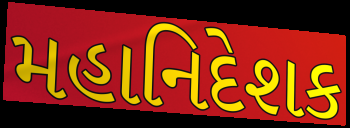
મહાનિદેશક